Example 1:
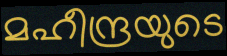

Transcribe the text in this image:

മഹീന്ദ്രയുടെ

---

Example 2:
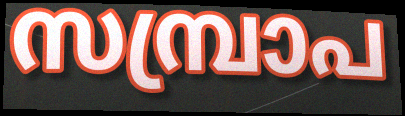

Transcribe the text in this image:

സമ്പ്രാപ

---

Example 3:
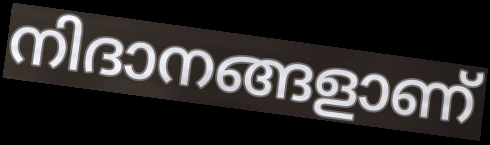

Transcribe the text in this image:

നിദാനങ്ങളാണ്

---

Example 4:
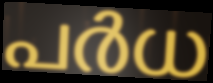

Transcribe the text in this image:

പർധ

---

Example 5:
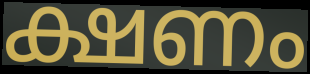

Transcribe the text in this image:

ക്ഷണം